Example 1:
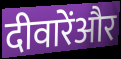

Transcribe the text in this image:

दीवारेंऔर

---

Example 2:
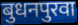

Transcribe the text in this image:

बुधनपुरवा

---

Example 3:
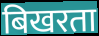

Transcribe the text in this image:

बिखरता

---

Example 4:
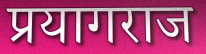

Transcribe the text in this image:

प्रयागराज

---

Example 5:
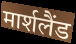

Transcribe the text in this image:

मार्शलैंड